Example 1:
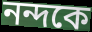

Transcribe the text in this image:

নন্দকে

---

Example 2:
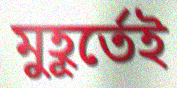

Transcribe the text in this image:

মুহূর্তেই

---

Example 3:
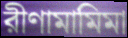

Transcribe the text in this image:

রীণামামিমা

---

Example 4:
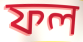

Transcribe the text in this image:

ফল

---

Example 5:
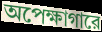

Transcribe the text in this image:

অপেক্ষাগারে